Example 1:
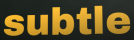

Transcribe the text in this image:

subtle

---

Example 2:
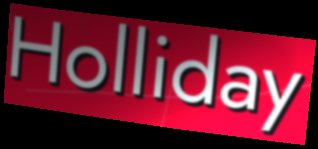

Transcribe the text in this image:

Holliday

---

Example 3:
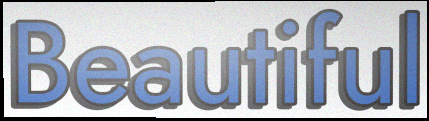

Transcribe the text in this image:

Beautiful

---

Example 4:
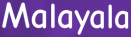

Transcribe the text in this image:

Malayala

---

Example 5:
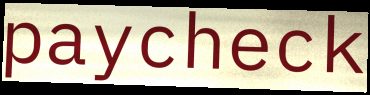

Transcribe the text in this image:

paycheck